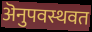
ऄनुपवस्थवत